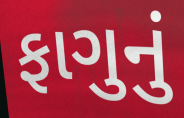
ફાગુનું